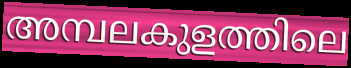
അമ്പലകുളത്തിലെ